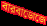
বারবাডোজে